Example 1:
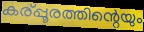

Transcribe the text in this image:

കര്പ്പൂരത്തിന്റെയും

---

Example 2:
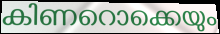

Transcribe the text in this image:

കിണറൊക്കെയും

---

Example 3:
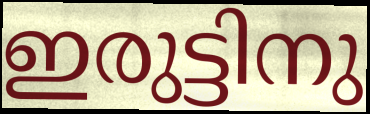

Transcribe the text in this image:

ഇരുട്ടിനു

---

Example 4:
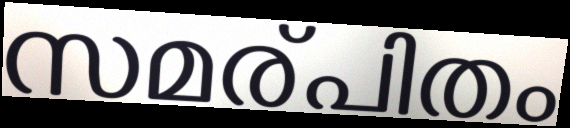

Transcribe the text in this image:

സമര്പിതം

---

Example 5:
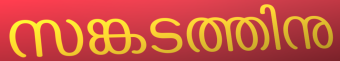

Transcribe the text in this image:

സങ്കടത്തിനു